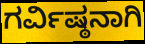
ಗರ್ವಿಷ್ಠನಾಗಿ